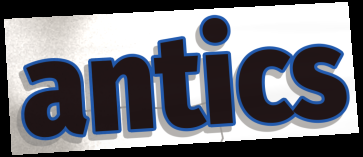
antics